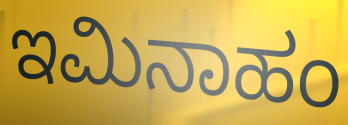
ಇಮಿನಾಹಂ